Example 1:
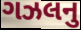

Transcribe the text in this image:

ગઝલનુ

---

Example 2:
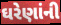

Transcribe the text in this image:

ઘરેણાંની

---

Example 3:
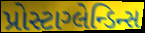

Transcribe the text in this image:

પ્રોસ્ટાગ્લેન્ડિન્સ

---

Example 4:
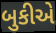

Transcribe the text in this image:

બુકીએ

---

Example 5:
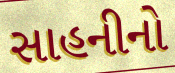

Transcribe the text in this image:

સાહનીનો